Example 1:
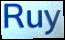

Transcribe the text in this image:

Ruy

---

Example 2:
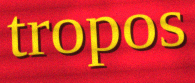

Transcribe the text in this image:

tropos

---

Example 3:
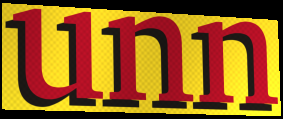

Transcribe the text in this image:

unn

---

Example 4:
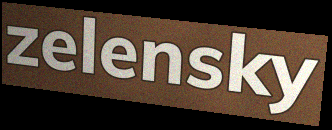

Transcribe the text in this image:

zelensky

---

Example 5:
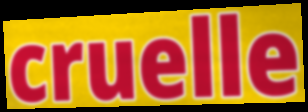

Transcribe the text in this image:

cruelle